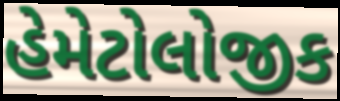
હેમેટોલોજીક